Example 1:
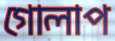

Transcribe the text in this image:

গোলাপ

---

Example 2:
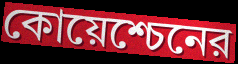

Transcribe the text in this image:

কোয়েশ্চেনের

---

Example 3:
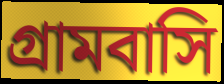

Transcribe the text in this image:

গ্রামবাসি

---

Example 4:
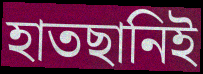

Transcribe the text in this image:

হাতছানিই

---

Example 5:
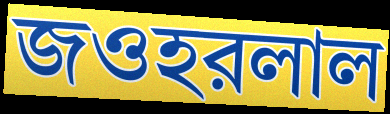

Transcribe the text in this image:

জওহরলাল